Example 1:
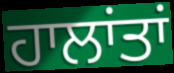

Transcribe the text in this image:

ਹਾਲਾਂਤਾਂ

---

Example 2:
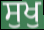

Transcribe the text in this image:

ਸੁਖੁ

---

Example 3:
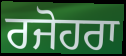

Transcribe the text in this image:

ਰਜੋਹਰਾ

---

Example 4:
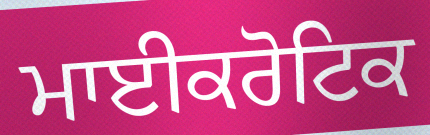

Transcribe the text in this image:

ਮਾਈਕਰੋਟਿਕ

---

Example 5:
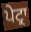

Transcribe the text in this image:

ਪੇਟ੍ਰਾ